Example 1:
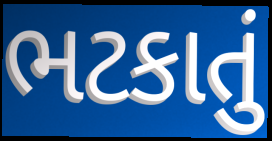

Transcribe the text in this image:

ભટકાતું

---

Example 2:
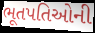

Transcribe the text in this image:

ભૂતપતિઓની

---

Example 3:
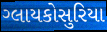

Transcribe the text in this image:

ગ્લાયકોસુરિયા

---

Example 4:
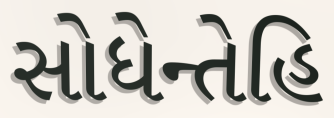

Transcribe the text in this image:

સોધેન્તેહિ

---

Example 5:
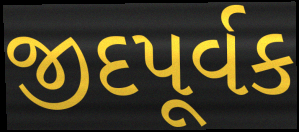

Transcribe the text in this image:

જીદપૂર્વક